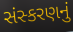
સંસ્કરણનું